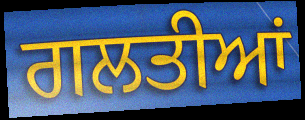
ਗਲਤੀਆਂ